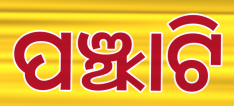
ପଞ୍ଝାଟି